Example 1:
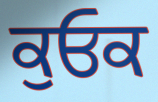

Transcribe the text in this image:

ਕੁਓਕ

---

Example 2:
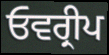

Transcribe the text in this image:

ਓਵਰ੍ਰੀਪ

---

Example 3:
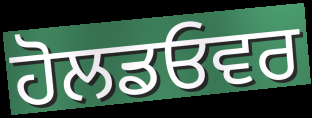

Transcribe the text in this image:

ਹੋਲਡਓਵਰ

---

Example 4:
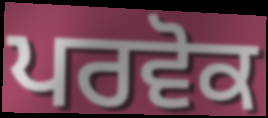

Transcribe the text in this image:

ਪਰਵੋਕ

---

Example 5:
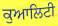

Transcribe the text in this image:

ਕੁਆਲਿਟੀ